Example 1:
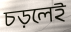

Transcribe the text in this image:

চড়লেই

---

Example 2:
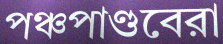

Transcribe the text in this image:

পঞ্চপাণ্ডবেরা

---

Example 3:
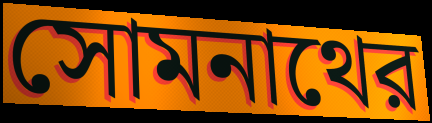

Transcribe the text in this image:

সোমনাথের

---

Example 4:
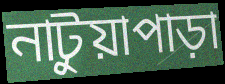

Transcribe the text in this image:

নাটুয়াপাড়া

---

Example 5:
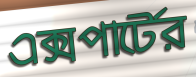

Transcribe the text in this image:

এক্সপার্টের